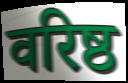
वरिष्ठ